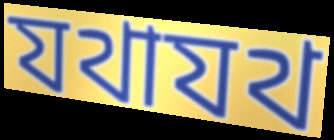
যথাযথ